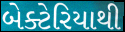
બેક્ટેરિયાથી